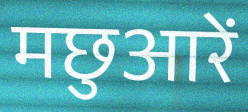
मछुआरें